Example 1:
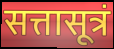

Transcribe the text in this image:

सत्तासूत्रं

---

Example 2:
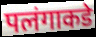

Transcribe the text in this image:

पलंगाकडे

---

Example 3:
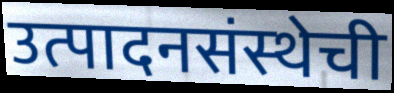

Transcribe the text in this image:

उत्पादनसंस्थेची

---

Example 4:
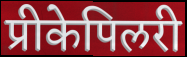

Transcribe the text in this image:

प्रीकेपिलरी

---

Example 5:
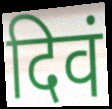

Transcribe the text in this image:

दिवं